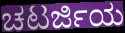
ಚಟರ್ಜಿಯ